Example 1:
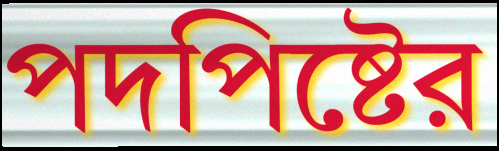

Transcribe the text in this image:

পদপিষ্টের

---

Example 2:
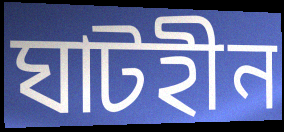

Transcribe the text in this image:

ঘাটহীন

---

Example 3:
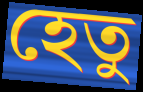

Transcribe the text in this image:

হেতু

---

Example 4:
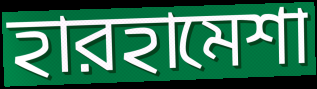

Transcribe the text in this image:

হারহামেশা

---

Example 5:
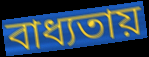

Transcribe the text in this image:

বাধ্যতায়